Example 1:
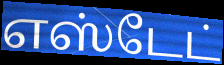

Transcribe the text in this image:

எஸ்டேட்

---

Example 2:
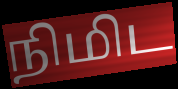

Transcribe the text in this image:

நிமிட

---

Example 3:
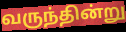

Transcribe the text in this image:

வருந்தின்று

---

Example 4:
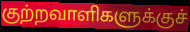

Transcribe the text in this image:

குற்றவாளிகளுக்குச்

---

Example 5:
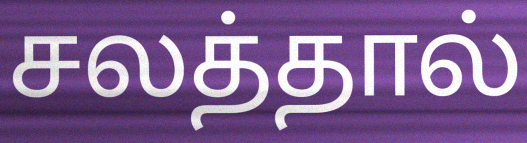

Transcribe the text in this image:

சலத்தால்